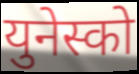
युनेस्को